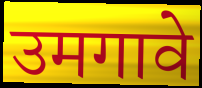
उमगावे